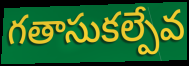
గతాసుకల్పేవ